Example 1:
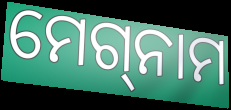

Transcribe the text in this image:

ମେଗ୍‌ନାମ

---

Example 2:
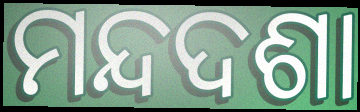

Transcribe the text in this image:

ମନ୍ଦଦଶା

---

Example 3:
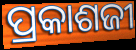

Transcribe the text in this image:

ପ୍ରକାଶଜୀ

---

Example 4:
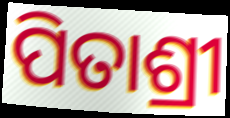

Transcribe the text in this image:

ପିତାଶ୍ରୀ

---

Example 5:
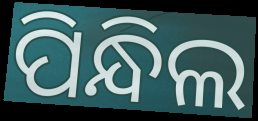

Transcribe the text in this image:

ପିନ୍ଧିଲ